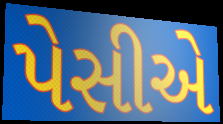
પેસીએ